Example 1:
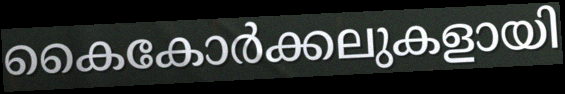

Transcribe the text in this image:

കൈകോർക്കലുകളായി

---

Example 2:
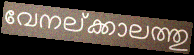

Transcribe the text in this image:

വേനല്ക്കാലത്തു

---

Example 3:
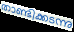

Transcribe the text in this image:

താണ്ടിക്കടന്നു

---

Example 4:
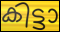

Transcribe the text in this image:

കിട്ടാ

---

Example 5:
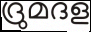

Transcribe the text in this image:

ദ്രുമദള